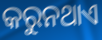
କରୁନଥାଏ